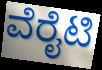
ವೆರೈಟಿ